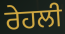
ਰੇਹਲੀ